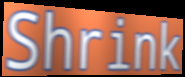
Shrink